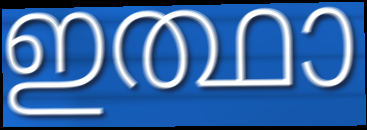
ഇത്ഥാ